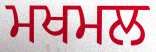
ਮਖਮਲ